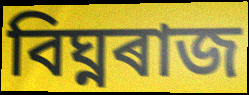
বিঘ্নৰাজ